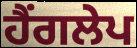
ਹੈਂਗਲੇਪ